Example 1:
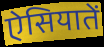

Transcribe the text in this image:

ऐसियातें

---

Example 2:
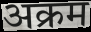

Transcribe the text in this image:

अक्रम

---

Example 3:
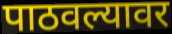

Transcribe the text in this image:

पाठवल्यावर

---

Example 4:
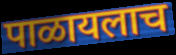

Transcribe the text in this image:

पाळायलाच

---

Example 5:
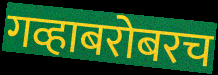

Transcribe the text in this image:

गव्हाबरोबरच